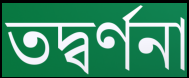
তদ্বর্ণনা